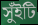
সুঁইটি